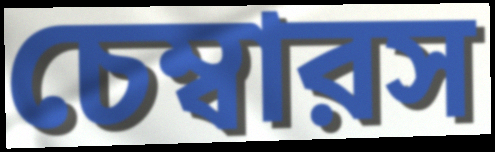
চেম্বারস